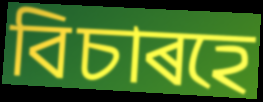
বিচাৰহে